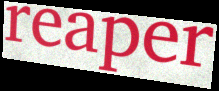
reaper